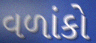
વળાંકો